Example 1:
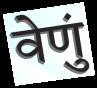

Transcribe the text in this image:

वेणुं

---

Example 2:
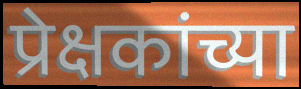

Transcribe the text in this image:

प्रेक्षकांच्या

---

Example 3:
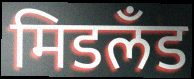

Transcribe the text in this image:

मिडलँड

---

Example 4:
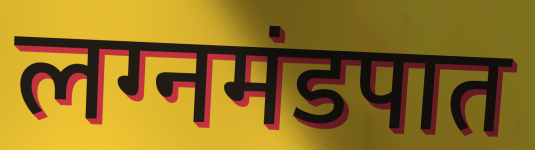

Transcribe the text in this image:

लग्नमंडपात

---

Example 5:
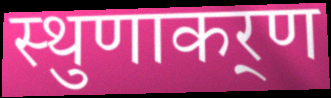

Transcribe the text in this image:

स्थुणाकर्ण